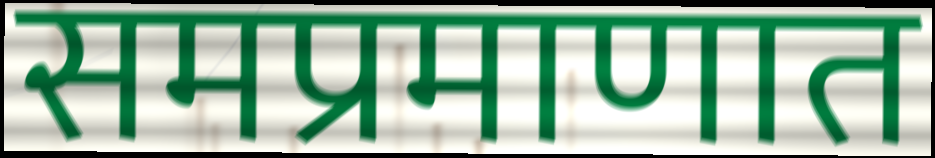
समप्रमाणात